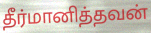
தீர்மானித்தவன்